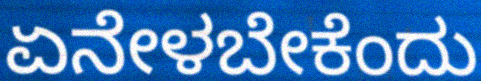
ಏನೇಳಬೇಕೆಂದು